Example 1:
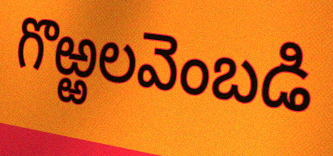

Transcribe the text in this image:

గొఱ్ఱలవెంబడి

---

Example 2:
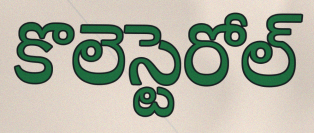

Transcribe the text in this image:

కొలెస్టెరోల్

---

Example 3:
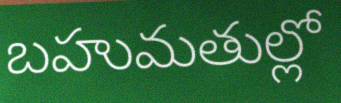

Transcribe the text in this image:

బహుమతుల్లో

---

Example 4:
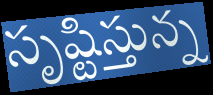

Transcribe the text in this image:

సృష్టిస్తున్న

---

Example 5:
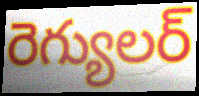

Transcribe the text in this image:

రెగ్యులర్